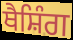
ਥੈਸ਼ਿੰਗ